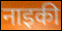
नाइकी